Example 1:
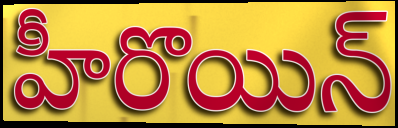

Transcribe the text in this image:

హీరొయిన్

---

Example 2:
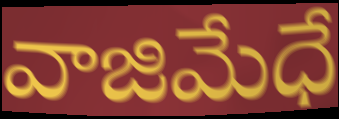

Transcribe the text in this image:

వాజిమేధే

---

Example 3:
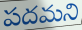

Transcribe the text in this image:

పదమని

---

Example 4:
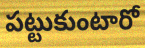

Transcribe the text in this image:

పట్టుకుంటారో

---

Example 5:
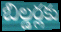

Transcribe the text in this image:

బిల్డర్లకు